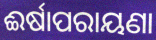
ଈର୍ଷାପରାୟଣା